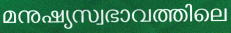
മനുഷ്യസ്വഭാവത്തിലെ